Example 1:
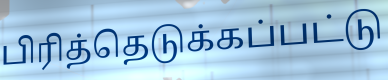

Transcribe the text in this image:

பிரித்தெடுக்கப்பட்டு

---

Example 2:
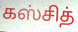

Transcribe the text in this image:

கஸ்சித்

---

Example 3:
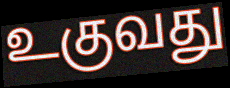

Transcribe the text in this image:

உகுவது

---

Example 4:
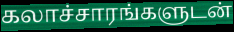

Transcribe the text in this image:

கலாச்சாரங்களுடன்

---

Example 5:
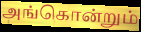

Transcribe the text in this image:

அங்கொன்றும்